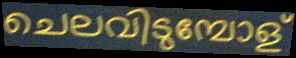
ചെലവിടുമ്പോള്